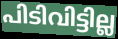
പിടിവിട്ടില്ല